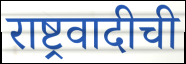
राष्ट्रवादीची